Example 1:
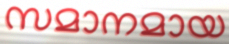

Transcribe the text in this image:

സമാനമായ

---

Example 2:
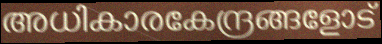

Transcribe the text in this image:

അധികാരകേന്ദ്രങ്ങളോട്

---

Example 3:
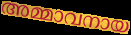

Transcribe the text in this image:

അമ്മാവനായ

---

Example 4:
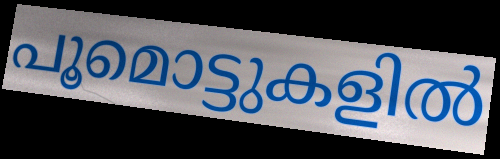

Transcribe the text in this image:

പൂമൊട്ടുകളിൽ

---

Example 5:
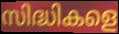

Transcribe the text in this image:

സിദ്ധികളെ